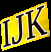
IJK